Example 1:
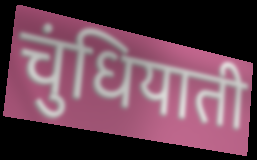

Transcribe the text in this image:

चुंधियाती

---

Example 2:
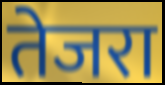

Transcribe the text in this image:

तेजरा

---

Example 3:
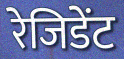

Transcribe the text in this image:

रेजिडेंट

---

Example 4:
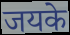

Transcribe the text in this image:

जयके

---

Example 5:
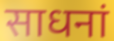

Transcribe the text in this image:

साधनां